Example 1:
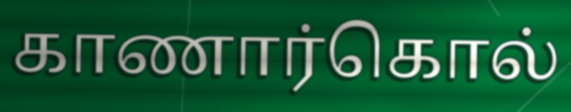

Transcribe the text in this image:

காணார்கொல்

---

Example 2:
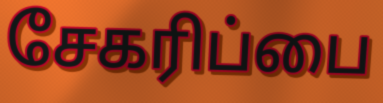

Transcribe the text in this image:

சேகரிப்பை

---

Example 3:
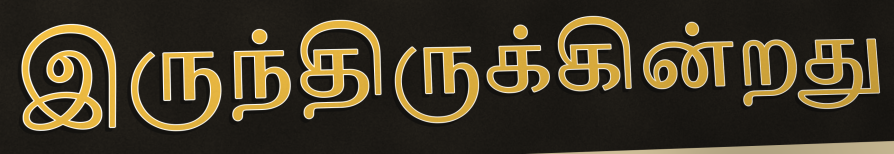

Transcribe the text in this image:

இருந்திருக்கின்றது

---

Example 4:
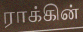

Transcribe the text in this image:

ராக்கின்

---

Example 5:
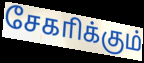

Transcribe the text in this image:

சேகரிக்கும்